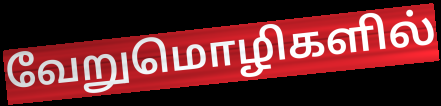
வேறுமொழிகளில்